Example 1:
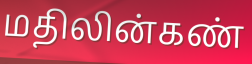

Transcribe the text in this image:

மதிலின்கண்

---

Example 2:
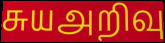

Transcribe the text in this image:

சுயஅறிவு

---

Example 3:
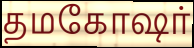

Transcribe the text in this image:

தமகோஷர்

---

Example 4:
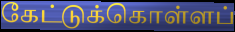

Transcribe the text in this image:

கேட்டுக்கொள்ளப்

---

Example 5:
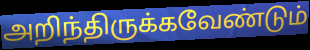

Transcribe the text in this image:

அறிந்திருக்கவேண்டும்